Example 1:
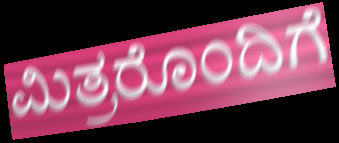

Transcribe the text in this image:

ಮಿತ್ರರೊಂದಿಗೆ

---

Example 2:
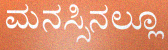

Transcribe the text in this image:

ಮನಸ್ಸಿನಲ್ಲೂ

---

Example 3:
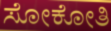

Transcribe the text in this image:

ಸೋಕೋತಿ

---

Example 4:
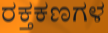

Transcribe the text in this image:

ರಕ್ತಕಣಗಳ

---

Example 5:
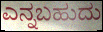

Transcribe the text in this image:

ಎನ್ನಬಹುದು